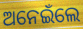
ଅନେଇଁଲେ